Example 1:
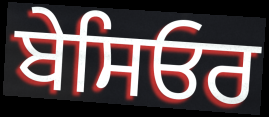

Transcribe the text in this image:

ਬੇਸਿਓਰ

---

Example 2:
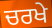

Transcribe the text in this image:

ਚਰਖੇ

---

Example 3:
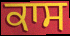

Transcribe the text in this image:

ਕਾਸ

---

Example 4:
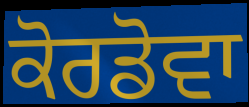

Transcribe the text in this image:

ਕੋਰਡੋਵਾ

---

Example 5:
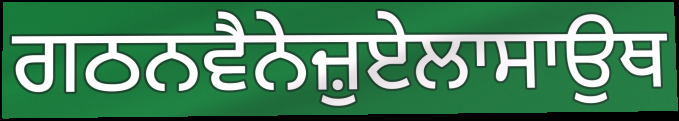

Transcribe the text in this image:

ਗਠਨਵੈਨੇਜ਼ੁਏਲਾਸਾਉਥ